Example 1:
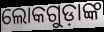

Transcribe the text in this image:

ଲୋକଗୁଡ଼ାଙ୍କ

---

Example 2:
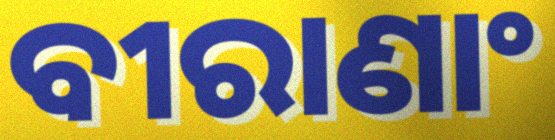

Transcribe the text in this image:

ବୀରାଣାଂ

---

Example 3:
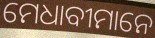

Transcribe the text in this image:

ମେଧାବୀମାନେ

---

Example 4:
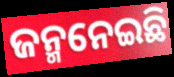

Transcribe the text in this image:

ଜନ୍ମନେଇଛି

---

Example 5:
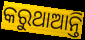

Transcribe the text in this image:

କରୁଥାଆନ୍ତି